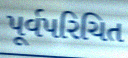
પૂર્વપરિચિત